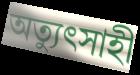
অত্যুৎসাহী